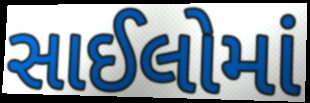
સાઈલોમાં